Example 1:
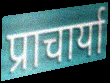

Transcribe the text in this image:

प्राचार्या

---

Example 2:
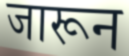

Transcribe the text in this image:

जारून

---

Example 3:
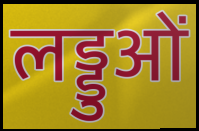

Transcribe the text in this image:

लड्डुओं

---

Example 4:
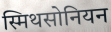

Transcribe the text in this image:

स्मिथसोनियन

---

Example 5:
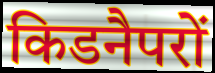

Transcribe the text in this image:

किडनैपरों